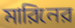
মারিনের